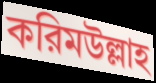
করিমউল্লাহ